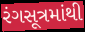
રંગસૂત્રમાંથી